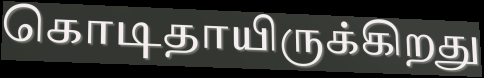
கொடிதாயிருக்கிறது